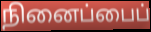
நினைப்பைப்